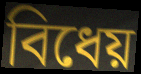
বিধেয়